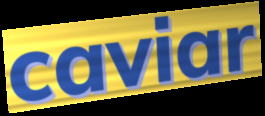
caviar